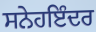
ਸਨੇਹਇੰਦਰ